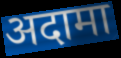
अदामा